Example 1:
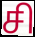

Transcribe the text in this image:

சி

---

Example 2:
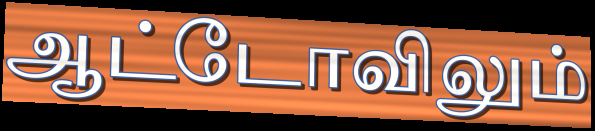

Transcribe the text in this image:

ஆட்டோவிலும்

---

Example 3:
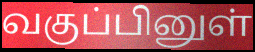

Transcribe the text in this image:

வகுப்பினுள்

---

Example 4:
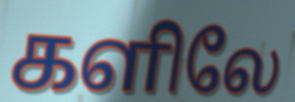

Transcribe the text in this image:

களிலே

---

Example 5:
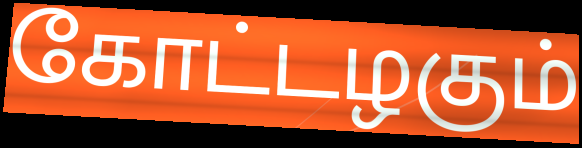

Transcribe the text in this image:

கோட்டழகும்